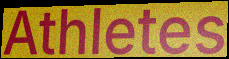
Athletes